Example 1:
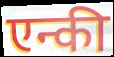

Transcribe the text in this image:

एन्की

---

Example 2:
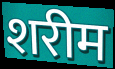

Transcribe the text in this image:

शरीम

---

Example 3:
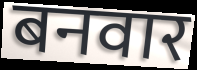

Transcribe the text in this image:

बनवार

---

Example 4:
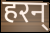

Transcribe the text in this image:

हरन्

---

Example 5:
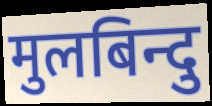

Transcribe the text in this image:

मुलबिन्दु